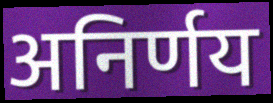
अनिर्णय